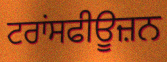
ਟਰਾਂਸਫੀਊਜ਼ਨ